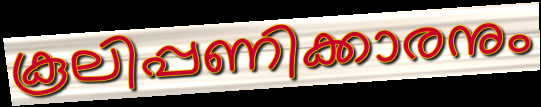
കൂലിപ്പണിക്കാരനും